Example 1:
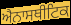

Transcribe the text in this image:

ਐਨਾਸਥੀਟਿਕ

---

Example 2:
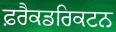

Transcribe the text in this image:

ਫ਼ਰੈਕਡਰਿਕਟਨ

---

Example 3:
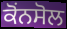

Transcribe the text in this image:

ਕੋਂਨਸੋਲ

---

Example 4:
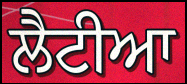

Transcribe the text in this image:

ਲੈਟੀਆ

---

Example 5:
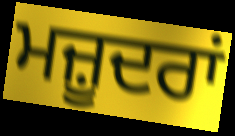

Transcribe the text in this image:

ਮਜ਼ੂਦਰਾਂ